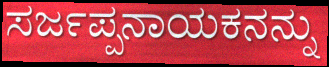
ಸರ್ಜಪ್ಪನಾಯಕನನ್ನು